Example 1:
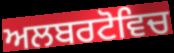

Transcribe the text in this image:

ਅਲਬਰਟੋਵਿਚ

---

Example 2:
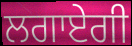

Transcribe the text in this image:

ਲਗਾਏਗੀ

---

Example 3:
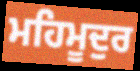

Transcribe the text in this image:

ਮਹਿਮੂਦੁਰ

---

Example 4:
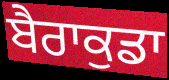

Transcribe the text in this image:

ਬੈਰਾਕੁਡਾ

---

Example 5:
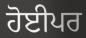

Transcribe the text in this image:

ਹੋਈਪਰ